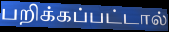
பறிக்கப்பட்டால்